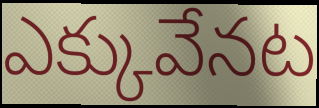
ఎక్కువేనట